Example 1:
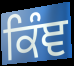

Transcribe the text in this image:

ਕਿੰਞ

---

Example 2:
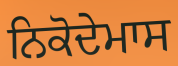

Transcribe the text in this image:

ਨਿਕੋਦੇਮਾਸ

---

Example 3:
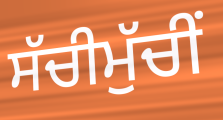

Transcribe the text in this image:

ਸੱਚੀਮੁੱਚੀਂ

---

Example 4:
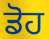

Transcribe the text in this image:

ਡੋਹ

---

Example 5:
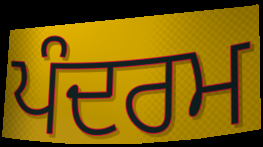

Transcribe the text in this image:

ਪੰਦਰਮ